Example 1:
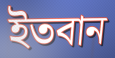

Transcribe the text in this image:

ইতবান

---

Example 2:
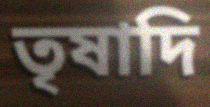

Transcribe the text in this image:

তৃষাদি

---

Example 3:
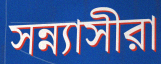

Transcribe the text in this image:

সন্ন্যাসীরা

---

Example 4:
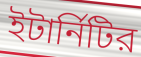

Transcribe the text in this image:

ইটার্নিটির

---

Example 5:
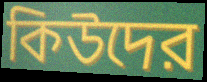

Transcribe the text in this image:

কিউদের